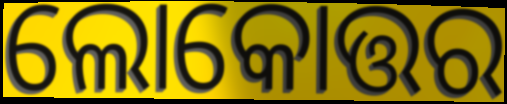
ଲୋକୋତ୍ତର